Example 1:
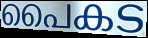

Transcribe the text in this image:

പൈകട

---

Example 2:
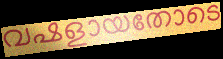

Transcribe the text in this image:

വഷളായതോടെ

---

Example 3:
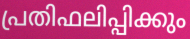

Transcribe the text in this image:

പ്രതിഫലിപ്പിക്കും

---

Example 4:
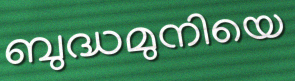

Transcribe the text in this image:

ബുദ്ധമുനിയെ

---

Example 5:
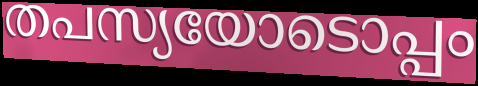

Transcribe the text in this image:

തപസ്യയോടൊപ്പം